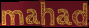
mahad